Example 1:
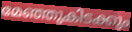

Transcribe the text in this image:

മേഞ്ഞുകിടക്കും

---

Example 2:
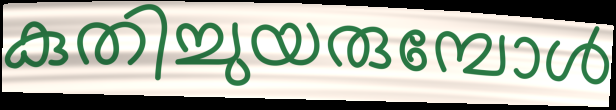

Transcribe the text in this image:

കുതിച്ചുയരുമ്പോൾ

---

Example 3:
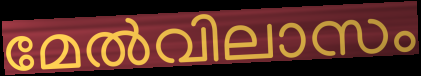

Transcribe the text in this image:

മേൽവിലാസം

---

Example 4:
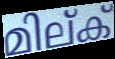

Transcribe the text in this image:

മില്ക്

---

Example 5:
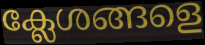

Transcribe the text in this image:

ക്ലേശങ്ങളെ